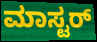
ಮಾಸ್ಟರ್